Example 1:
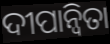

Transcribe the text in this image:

ଦୀପାନ୍ୱିତା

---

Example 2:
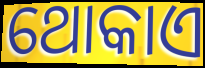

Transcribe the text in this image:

ଥୋକାଏ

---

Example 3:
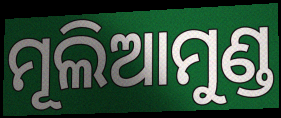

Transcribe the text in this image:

ମୂଲିଆମୁଣ୍ଡ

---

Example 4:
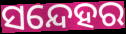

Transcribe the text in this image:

ସନ୍ଦେହର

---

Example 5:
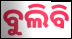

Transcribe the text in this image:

ବୁଲିବି